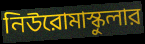
নিউরোমাস্কুলার